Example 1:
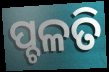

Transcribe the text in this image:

ପ୍ଚଳତି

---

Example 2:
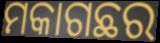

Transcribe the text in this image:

ମକାଗଛର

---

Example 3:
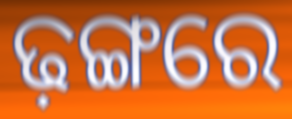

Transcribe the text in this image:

ଢ଼ଙ୍ଗରେ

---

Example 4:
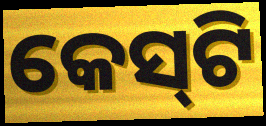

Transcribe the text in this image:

କେସ୍‌ଟି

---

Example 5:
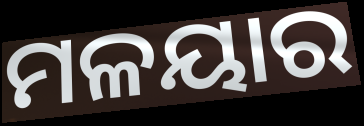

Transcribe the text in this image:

ମଳୟାର